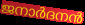
ജനാർദനൻ